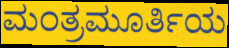
ಮಂತ್ರಮೂರ್ತಿಯ